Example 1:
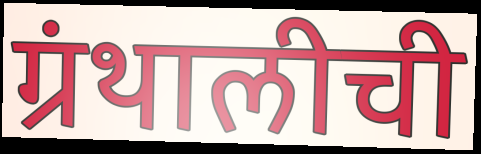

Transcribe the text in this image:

ग्रंथालीची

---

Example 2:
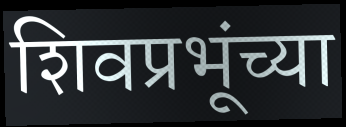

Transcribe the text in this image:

शिवप्रभूंच्या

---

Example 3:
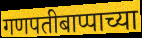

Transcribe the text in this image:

गणपतीबाप्पाच्या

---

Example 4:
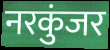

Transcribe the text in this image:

नरकुंजर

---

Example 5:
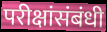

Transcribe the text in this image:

परीक्षांसंबंधी